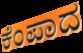
ಕೆಂಪಾದ